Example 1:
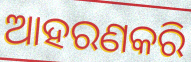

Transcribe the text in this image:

ଆହରଣକରି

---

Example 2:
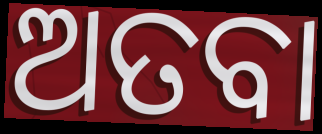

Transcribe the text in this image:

ଅତବା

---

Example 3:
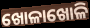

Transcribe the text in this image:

ଖୋଳାଖୋଳି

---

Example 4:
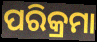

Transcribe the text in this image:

ପରିକ୍ରମା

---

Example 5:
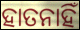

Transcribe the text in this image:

ହାତନାହିଁ